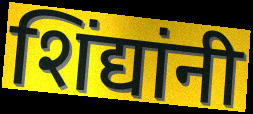
शिंद्यांनी